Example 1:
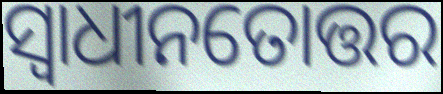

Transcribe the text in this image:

ସ୍ୱାଧୀନତୋତ୍ତର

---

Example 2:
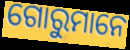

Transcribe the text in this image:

ଗୋରୁମାନେ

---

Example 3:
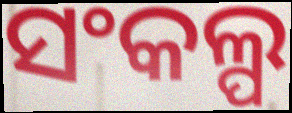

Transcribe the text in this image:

ସଂକଲ୍ପ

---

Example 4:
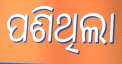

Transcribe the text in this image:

ପଶିଥିଲା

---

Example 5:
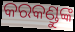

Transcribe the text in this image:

କରକଣ୍ଡୁଙ୍କ